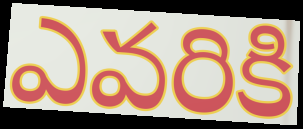
ఎవరికి